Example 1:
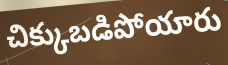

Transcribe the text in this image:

చిక్కుబడిపోయారు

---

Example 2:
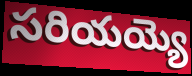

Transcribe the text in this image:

సరియయ్యె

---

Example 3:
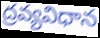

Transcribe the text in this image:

ద్రవ్యవిధాన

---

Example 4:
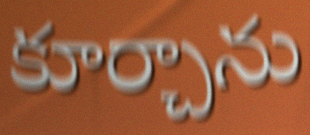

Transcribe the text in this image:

కూర్చాను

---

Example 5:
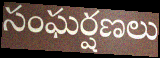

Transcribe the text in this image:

సంఘర్షణలు